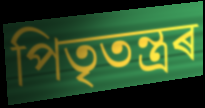
পিতৃতন্ত্ৰৰ